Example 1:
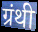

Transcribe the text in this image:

ग्रंथी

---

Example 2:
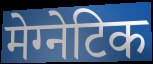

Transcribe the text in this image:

मेग्नेटिक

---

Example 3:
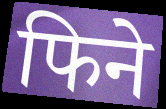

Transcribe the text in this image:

फिने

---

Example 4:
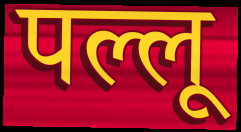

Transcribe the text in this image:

पल्लू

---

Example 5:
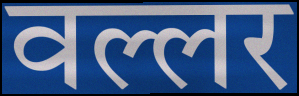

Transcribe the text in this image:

वल्लर